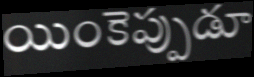
యింకెప్పుడూ